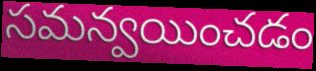
సమన్వయించడం